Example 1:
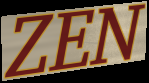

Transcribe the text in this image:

ZEN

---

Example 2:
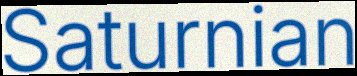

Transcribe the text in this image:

Saturnian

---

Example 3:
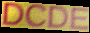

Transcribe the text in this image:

DCDE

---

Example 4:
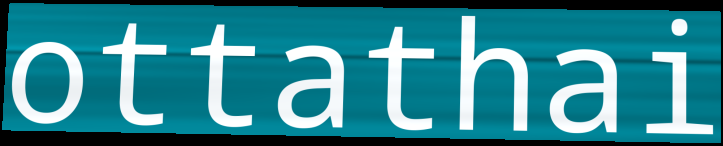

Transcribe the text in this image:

ottathai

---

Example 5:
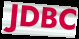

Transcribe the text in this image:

JDBC